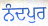
ਨੰਦਪੁਰ